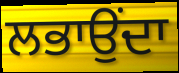
ਲਭਾਉਂਦਾ